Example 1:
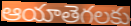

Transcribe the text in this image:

ఆయాతెగలకు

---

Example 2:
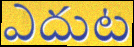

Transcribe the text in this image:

ఎదుట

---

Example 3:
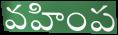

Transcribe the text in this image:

వహింప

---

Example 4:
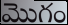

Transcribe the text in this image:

మొగం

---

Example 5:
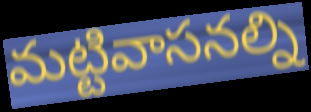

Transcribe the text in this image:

మట్టివాసనల్ని